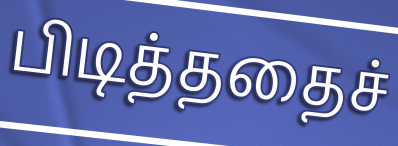
பிடித்ததைச்